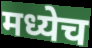
मध्येच